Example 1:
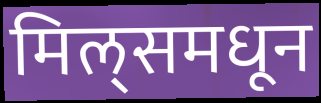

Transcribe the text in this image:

मिल्समधून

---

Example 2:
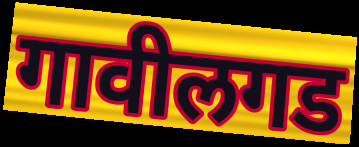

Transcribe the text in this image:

गावीलगड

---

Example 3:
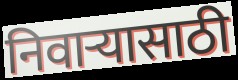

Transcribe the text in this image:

निवाऱ्यासाठी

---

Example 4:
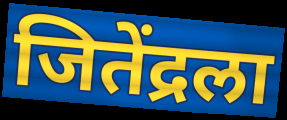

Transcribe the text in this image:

जितेंद्रला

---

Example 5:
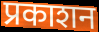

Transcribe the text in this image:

प्रकाशन